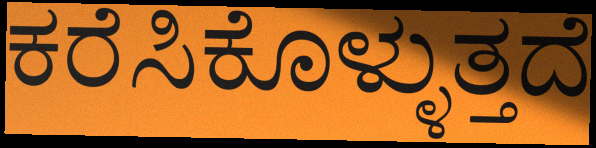
ಕರೆಸಿಕೊಳ್ಳುತ್ತದೆ